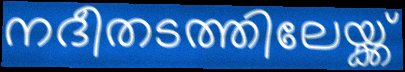
നദീതടത്തിലേയ്ക്ക്